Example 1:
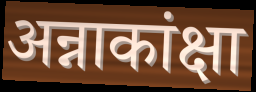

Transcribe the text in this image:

अन्नाकांक्षा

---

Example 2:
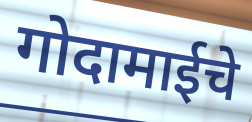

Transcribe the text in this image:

गोदामाईचे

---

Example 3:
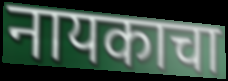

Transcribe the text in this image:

नायकाचा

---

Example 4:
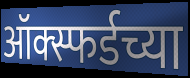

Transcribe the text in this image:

ऑक्स्फर्डच्या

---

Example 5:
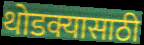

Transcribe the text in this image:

थोडक्यासाठी